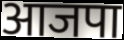
आजपा